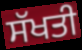
ਸੱਖਤੀ